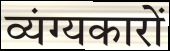
व्‍यंग्‍यकारों